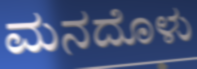
ಮನದೊಳು